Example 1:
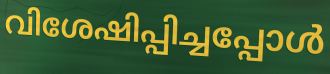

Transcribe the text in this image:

വിശേഷിപ്പിച്ചപ്പോൾ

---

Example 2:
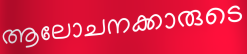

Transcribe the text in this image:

ആലോചനക്കാരുടെ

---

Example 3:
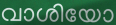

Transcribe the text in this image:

വാശിയോ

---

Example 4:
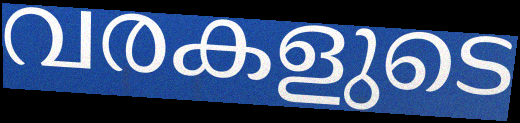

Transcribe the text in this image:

വരകളുടെ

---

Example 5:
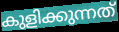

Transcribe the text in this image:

കുളിക്കുന്നത്